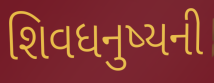
શિવધનુષ્યની